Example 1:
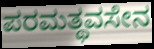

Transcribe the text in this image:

ಪರಮತ್ಥವಸೇನ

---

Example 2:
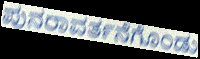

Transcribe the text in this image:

ಪುನರಾವರ್ತನೆಗೊಂಡು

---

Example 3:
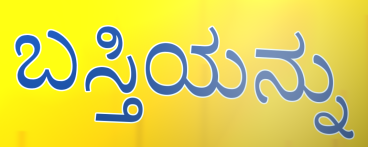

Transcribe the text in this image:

ಬಸ್ತಿಯನ್ನು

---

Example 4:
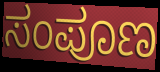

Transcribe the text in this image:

ಸಂಪೂಣ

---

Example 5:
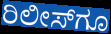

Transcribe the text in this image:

ರಿಲೀಸ್‌ಗೂ